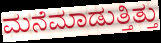
ಮನೆಮಾಡುತ್ತಿತ್ತು